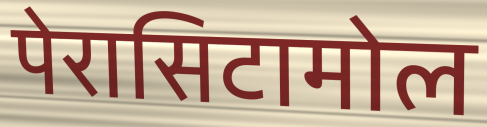
पेरासिटामोल